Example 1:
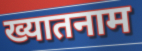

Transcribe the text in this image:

ख्यातनाम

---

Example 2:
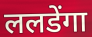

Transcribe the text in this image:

ललडेंगा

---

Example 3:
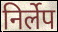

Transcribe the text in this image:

निर्लेप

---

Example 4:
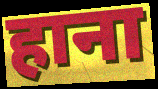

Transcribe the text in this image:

हाना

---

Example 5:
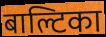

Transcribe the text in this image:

बाल्टिका